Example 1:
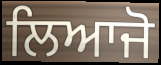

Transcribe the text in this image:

ਲਿਆਜੋ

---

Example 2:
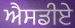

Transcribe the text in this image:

ਐਸਡੀਏ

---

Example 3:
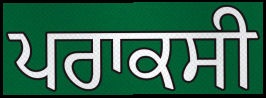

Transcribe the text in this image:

ਪਰਾਕਸੀ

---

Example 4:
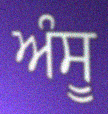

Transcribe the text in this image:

ਅੰਸੂ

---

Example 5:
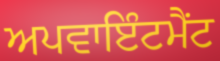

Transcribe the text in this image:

ਅਪਵਾਇੰਟਮੈਂਟ